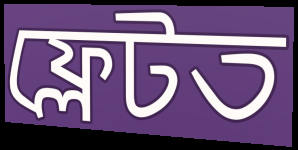
ফ্লেটত